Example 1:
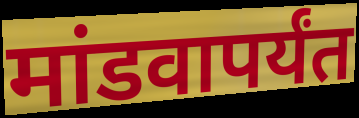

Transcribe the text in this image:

मांडवापर्यंत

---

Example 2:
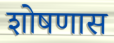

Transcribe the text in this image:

शोषणास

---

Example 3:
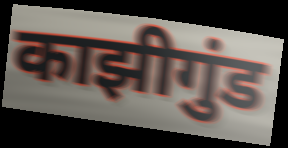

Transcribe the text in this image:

काझीगुंड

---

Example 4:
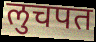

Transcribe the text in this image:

लुचपत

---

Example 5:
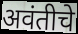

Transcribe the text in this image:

अवंतीचे